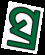
ସ୍ର